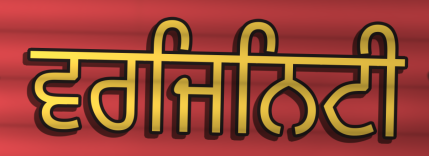
ਵਰਜਿਨਿਟੀ